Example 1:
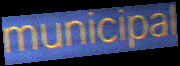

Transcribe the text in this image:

municipal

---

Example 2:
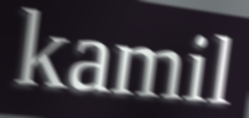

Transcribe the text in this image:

kamil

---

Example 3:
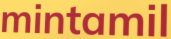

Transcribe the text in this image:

mintamil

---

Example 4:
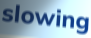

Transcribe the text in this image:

slowing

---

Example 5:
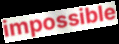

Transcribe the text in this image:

impossible